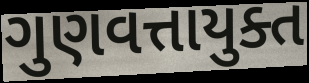
ગુણવત્તાયુક્ત